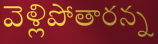
వెళ్లిపోతారన్న